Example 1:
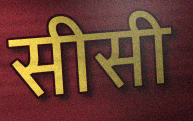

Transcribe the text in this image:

सीसी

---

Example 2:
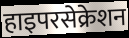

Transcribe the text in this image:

हाइपरसेक्रेशन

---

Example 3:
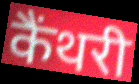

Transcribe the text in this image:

कैंथरी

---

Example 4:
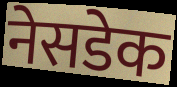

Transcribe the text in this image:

नेसडेक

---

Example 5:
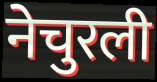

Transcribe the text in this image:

नेचुरली